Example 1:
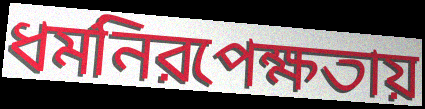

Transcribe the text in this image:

ধর্মনিরপেক্ষতায়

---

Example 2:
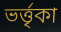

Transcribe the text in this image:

ভর্ত্তৃকা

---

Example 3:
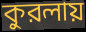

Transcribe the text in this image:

কুরলায়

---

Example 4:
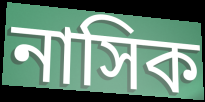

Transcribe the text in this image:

নাসিক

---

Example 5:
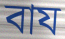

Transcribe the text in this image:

বায